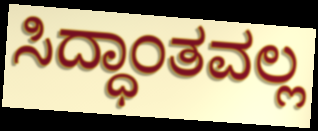
ಸಿದ್ಧಾಂತವಲ್ಲ